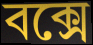
বক্সে